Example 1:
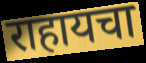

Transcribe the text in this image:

राहायचा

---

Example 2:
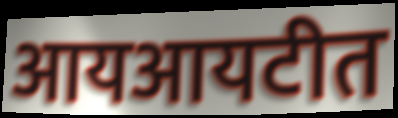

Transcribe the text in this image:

आयआयटीत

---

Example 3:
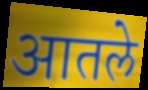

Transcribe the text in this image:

आतले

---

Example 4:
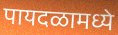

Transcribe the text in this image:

पायदळामध्ये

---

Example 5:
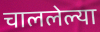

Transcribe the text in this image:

चाललेल्या